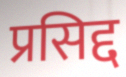
प्रसिद्द